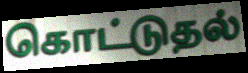
கொட்டுதல்